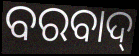
ବରବାଦ୍